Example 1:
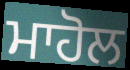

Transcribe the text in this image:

ਮਾਹੋਲ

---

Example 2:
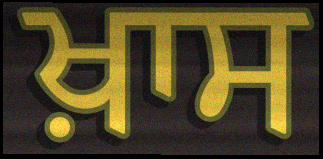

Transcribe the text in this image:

ਖ਼ਾਸ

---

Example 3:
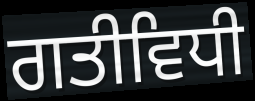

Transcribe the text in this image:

ਗਤੀਵਿਧੀ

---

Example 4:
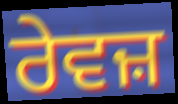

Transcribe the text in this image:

ਰੇਵਜ਼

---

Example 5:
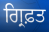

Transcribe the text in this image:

ਗ੍ਰਿਫ਼ਤ